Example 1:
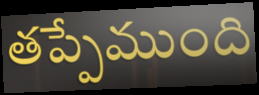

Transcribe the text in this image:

తప్పేముంది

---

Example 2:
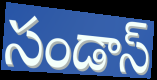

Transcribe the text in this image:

సండాస్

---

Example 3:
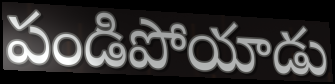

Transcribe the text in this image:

పండిపోయాడు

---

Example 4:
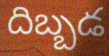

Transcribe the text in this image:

దిబ్బడ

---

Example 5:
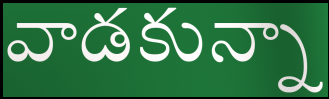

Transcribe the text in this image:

వాడకున్నా